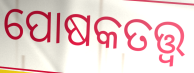
ପୋଷକତତ୍ତ୍ବ